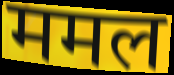
ममल